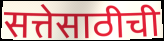
सत्तेसाठीची